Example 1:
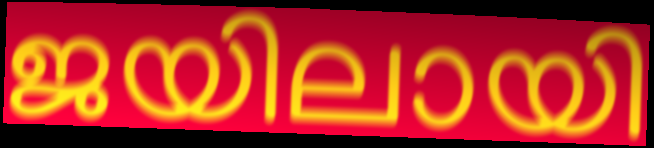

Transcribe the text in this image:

ജയിലായി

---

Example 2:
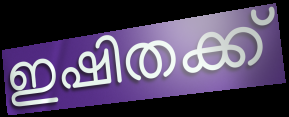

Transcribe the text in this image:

ഇഷിതക്ക്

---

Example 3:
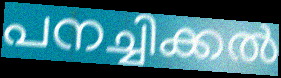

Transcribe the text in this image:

പനച്ചിക്കൽ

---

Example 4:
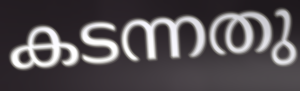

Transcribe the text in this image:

കടന്നതു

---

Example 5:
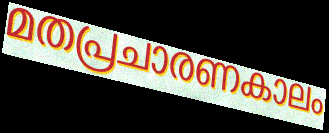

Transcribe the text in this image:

മതപ്രചാരണകാലം